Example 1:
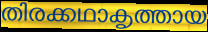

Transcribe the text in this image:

തിരക്കഥാകൃത്തായ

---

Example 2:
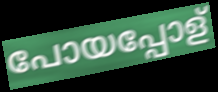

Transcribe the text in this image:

പോയപ്പോള്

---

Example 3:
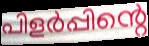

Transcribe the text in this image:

പിളർപ്പിന്റെ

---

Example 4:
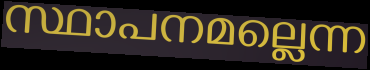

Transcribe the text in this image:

സ്ഥാപനമല്ലെന്ന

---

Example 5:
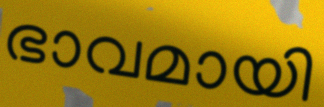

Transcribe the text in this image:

ഭാവമായി